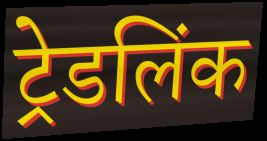
ट्रेडलिंक